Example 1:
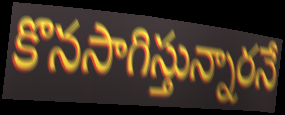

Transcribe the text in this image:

కొనసాగిస్తున్నారనే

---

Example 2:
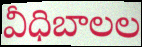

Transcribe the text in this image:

వీధిబాలల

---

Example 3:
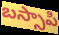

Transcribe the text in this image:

బస్సాపి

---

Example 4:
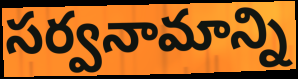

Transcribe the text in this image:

సర్వనామాన్ని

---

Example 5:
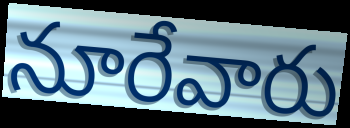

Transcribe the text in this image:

నూరేవారు